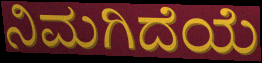
ನಿಮಗಿದೆಯೆ